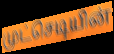
முட்செடியின்